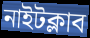
নাইটক্লাব